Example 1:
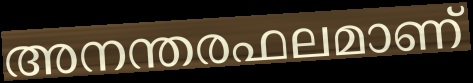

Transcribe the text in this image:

അനന്തരഫലമാണ്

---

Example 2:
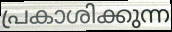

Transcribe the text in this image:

പ്രകാശിക്കുന്ന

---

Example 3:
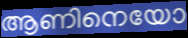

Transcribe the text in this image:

ആണിനെയോ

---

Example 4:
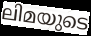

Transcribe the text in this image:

ലിമയുടെ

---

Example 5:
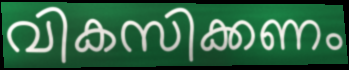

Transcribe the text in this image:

വികസിക്കണം